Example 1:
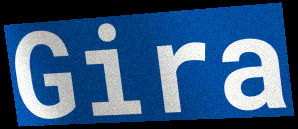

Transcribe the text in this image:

Gira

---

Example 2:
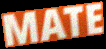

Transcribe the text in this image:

MATE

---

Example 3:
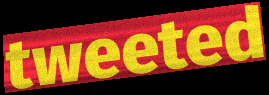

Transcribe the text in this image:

tweeted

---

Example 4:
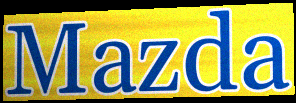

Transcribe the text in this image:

Mazda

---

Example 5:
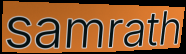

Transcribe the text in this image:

samrath